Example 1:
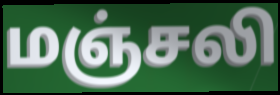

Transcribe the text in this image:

மஞ்சலி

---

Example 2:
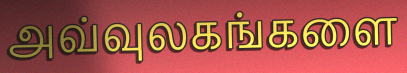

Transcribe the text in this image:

அவ்வுலகங்களை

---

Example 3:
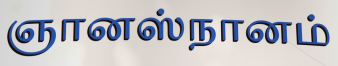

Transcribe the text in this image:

ஞானஸ்நானம்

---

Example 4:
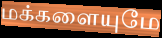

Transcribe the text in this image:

மக்களையுமே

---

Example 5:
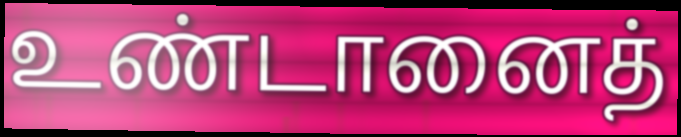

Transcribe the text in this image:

உண்டானைத்